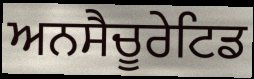
ਅਨਸੈਚੂਰੇਟਿਡ